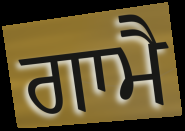
ਗਾਮੈ